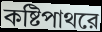
কষ্টিপাথরে